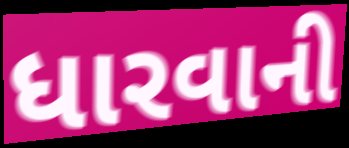
ધારવાની